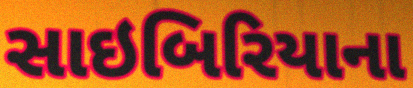
સાઇબિરિયાના